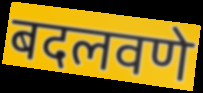
बदलवणे